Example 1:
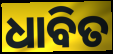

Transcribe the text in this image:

ଧାବିତ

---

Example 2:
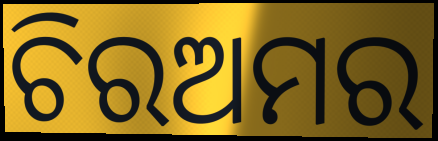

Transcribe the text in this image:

ଚିରଅମର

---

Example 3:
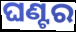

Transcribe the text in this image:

ଘଣ୍ଟର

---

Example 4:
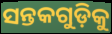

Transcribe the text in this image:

ସନ୍ତକଗୁଡ଼ିକୁ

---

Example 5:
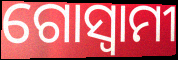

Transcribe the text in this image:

ଗୋସ୍ଵାମୀ